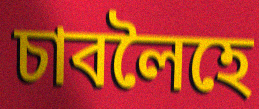
চাবলৈহে